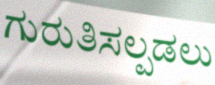
ಗುರುತಿಸಲ್ಪಡಲು